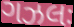
ગઝલઃ